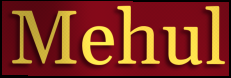
Mehul